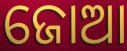
ଜୋଆ